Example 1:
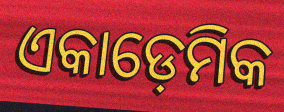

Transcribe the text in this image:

ଏକାଡ଼େମିକ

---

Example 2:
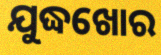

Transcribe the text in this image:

ଯୁଦ୍ଧଖୋର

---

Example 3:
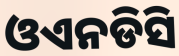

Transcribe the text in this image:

ଓଏନଡିସି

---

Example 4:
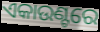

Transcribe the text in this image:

ଏକାଉଣ୍ଟରେ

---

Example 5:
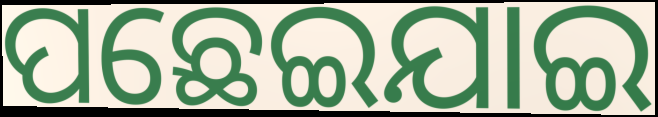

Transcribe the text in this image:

ପଛେଇଯାଇ